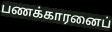
பணக்காரனைப்